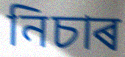
নিচাৰ